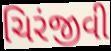
ચિરંજીવી